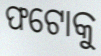
ଫଟୋକୁ